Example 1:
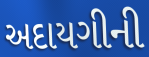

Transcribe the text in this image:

અદાયગીની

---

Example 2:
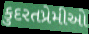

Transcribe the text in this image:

કુદરતપ્રેમીઓ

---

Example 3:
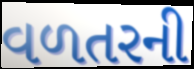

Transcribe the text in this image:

વળતરની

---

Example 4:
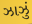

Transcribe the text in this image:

ઝાઝું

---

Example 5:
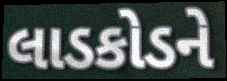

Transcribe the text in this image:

લાડકોડને